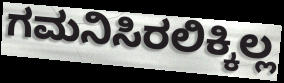
ಗಮನಿಸಿರಲಿಕ್ಕಿಲ್ಲ